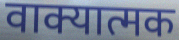
वाक्यात्मक